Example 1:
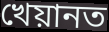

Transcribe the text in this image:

খেয়ানত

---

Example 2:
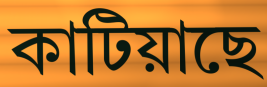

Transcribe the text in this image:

কাটিয়াছে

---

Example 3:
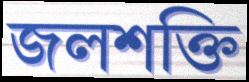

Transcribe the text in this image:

জলশক্তি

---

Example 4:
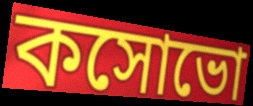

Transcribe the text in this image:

কসোভো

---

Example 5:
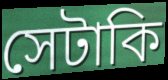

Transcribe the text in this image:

সেটাকি